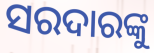
ସରଦାରଙ୍କୁ